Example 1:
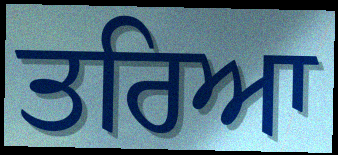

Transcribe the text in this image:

ਤਰਿਆ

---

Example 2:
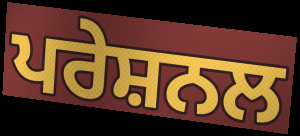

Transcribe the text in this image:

ਪਰੇਸ਼ਨਲ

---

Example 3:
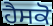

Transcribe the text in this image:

ਹੈਸਕੋ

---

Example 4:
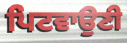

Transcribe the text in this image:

ਪਿਟਵਾਉਣੀ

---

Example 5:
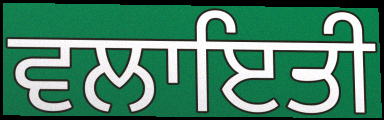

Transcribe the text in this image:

ਵਲਾਇਤੀ